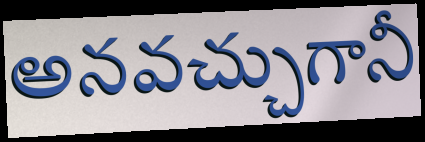
అనవచ్చుగానీ